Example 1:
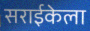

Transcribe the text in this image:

सराईकेला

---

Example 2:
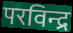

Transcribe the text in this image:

परविन्द्र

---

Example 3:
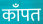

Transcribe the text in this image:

काँपत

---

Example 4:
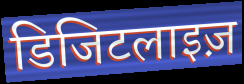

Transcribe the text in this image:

डिजिटलाइज़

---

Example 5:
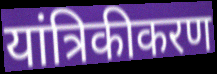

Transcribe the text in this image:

यांत्रिकीकरण